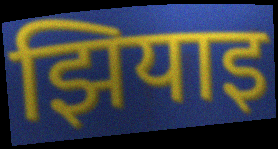
झियाइ